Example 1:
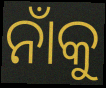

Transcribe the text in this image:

ନାଁକୁ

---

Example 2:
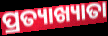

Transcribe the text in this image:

ପ୍ରତ୍ୟାଖ୍ୟାତା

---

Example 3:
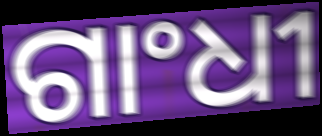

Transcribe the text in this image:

ଗାଂଧୀ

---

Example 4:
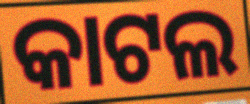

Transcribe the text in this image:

କାଟଲ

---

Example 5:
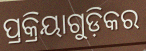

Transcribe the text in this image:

ପ୍ରକ୍ରିୟାଗୁଡ଼ିକର